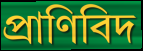
প্রাণিবিদ